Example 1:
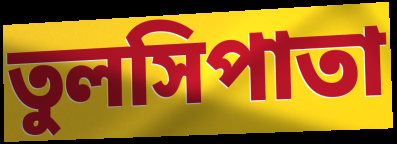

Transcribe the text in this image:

তুলসিপাতা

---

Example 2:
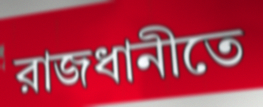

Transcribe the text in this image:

রাজধানীতে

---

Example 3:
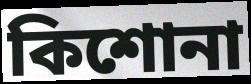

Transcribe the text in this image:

কিশোনা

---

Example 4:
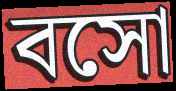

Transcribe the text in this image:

বসো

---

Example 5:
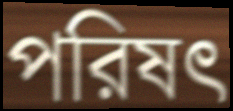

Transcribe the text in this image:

পরিষৎ